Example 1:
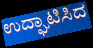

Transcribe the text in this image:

ಉದ್ಘಾಟಿಸಿದ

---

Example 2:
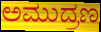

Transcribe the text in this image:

ಅಮುದ್ರಣ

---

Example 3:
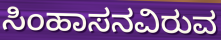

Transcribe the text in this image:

ಸಿಂಹಾಸನವಿರುವ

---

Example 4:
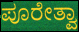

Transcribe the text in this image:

ಪೂರೇತ್ವಾ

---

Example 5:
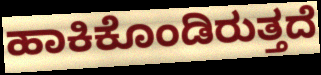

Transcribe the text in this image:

ಹಾಕಿಕೊಂಡಿರುತ್ತದೆ